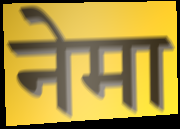
नेमा